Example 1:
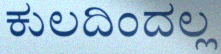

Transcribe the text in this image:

ಕುಲದಿಂದಲ್ಲ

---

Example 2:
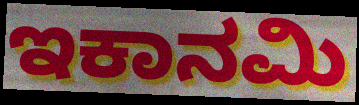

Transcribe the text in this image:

ಇಕಾನಮಿ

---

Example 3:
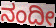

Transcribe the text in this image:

ನಂದೀ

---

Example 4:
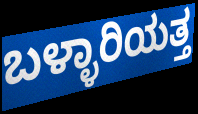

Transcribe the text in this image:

ಬಳ್ಳಾರಿಯತ್ತ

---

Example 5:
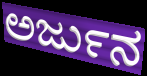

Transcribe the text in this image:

ಅರ್ಜುನ